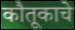
कौतूकाचे